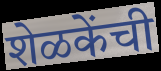
शेळकेंची